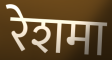
रेशमा